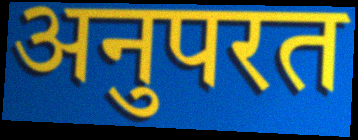
अनुपरत